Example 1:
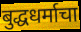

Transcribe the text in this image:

बुद्धधर्माचा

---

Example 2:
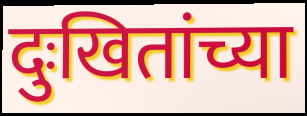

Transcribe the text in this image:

दुःखितांच्या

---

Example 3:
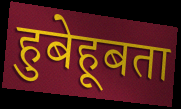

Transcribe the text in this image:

हुबेहूबता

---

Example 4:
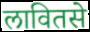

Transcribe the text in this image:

लावितसे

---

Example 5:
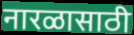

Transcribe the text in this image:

नारळासाठी